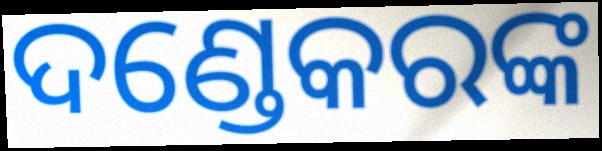
ଦଣ୍ଡେକରଙ୍କ